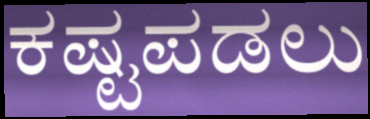
ಕಷ್ಟಪಡಲು